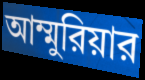
আম্মুরিয়ার